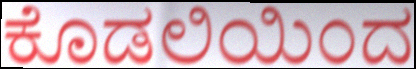
ಕೊಡಲಿಯಿಂದ